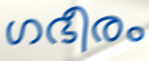
ഗഭീരം